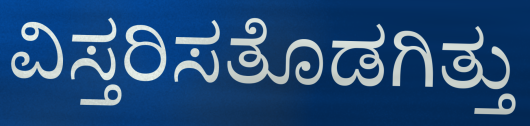
ವಿಸ್ತರಿಸತೊಡಗಿತ್ತು